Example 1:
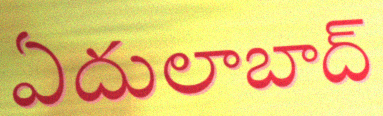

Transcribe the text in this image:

ఏదులాబాద్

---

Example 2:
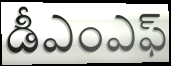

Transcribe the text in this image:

డీఎంఎఫ్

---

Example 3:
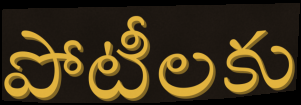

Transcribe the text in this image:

పోటీలకు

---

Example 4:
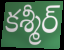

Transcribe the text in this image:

కశ్మీర్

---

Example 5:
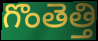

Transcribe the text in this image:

గొంతెత్తి